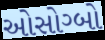
ઓસોગ્બો